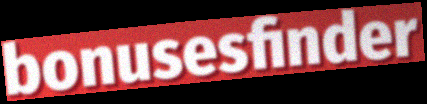
bonusesfinder